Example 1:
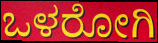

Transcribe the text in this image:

ಒಳರೋಗಿ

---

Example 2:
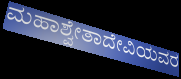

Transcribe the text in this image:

ಮಹಾಶ್ವೇತಾದೇವಿಯವರ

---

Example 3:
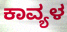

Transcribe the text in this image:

ಕಾವ್ಯಳ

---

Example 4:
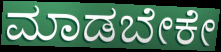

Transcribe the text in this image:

ಮಾಡಬೇಕೇ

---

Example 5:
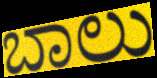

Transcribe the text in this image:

ಬಾಲು